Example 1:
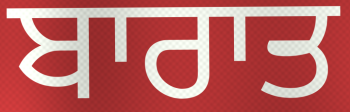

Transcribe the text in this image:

ਬਾਰਾਤ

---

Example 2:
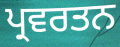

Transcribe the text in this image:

ਪ੍ਰਵਰਤਨ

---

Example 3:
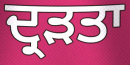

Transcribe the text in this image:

ਦ੍ਰੜਤਾ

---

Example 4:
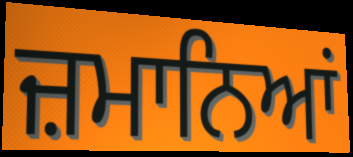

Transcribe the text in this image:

ਜ਼ਮਾਨਿਆਂ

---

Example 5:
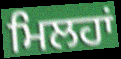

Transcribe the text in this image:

ਮਿਲਹਾਂ